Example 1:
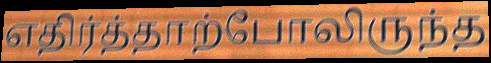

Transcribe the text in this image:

எதிர்த்தாற்போலிருந்த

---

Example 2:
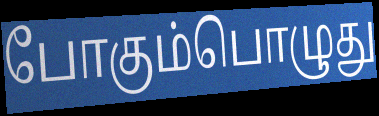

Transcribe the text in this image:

போகும்பொழுது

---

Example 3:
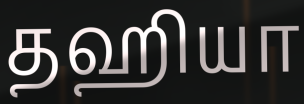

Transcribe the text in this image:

தஹியா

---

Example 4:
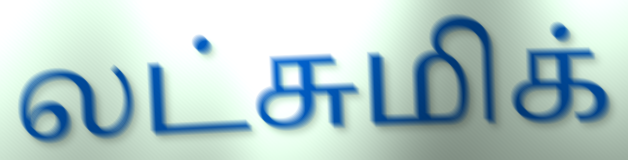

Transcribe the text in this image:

லட்சுமிக்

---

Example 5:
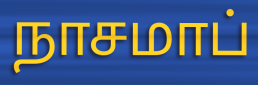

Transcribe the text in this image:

நாசமாப்